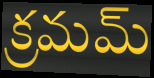
క్రమమ్